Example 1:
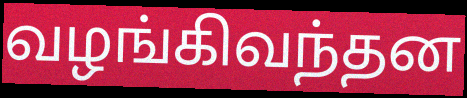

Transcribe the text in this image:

வழங்கிவந்தன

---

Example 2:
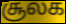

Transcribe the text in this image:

சூலக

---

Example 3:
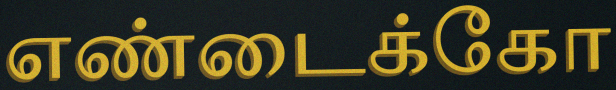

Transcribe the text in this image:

எண்டைக்கோ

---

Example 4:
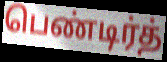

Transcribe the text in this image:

பெண்டிர்த்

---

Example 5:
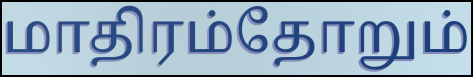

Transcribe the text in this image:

மாதிரம்தோறும்